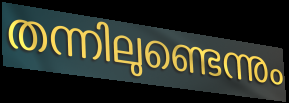
തന്നിലുണ്ടെന്നും